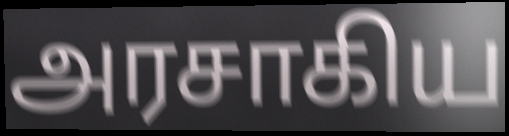
அரசாகிய